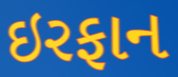
ઇરફાન